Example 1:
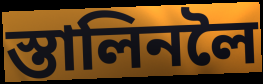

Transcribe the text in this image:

স্তালিনলৈ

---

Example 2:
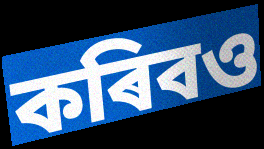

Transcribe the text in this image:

কৰিবও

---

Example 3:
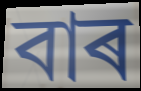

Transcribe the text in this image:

বাৰ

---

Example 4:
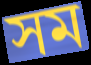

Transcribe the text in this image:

সম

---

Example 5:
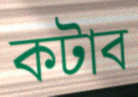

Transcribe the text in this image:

কটাব